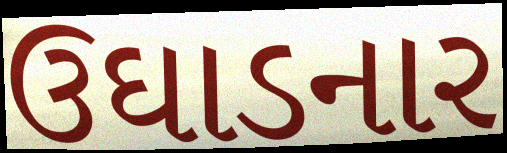
ઉઘાડનાર